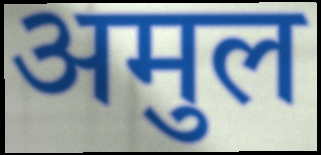
अमुल